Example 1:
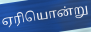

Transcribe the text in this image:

ஏரியொன்று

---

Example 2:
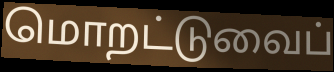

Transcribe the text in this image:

மொறட்டுவைப்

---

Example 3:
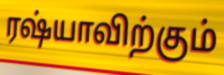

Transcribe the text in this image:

ரஷ்யாவிற்கும்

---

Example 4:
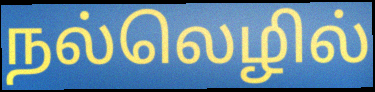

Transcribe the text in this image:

நல்லெழில்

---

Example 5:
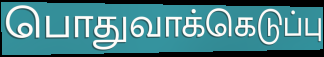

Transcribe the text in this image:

பொதுவாக்கெடுப்பு